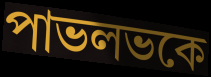
পাভলভকে